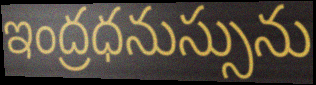
ఇంద్రధనుస్సును